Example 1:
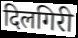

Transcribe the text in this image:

दिलगिरी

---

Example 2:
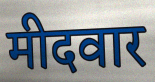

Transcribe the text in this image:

मीदवार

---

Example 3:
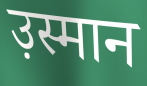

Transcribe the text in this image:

उ़स्मान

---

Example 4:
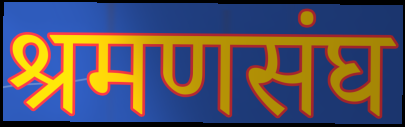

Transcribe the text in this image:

श्रमणसंघ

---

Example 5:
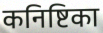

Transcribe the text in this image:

कनिष्टिका